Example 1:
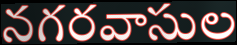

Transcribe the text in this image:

నగరవాసుల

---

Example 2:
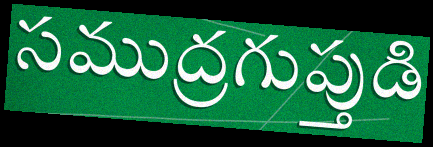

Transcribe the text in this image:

సముద్రగుప్తుడి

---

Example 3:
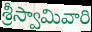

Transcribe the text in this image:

శ్రీస్వామివారి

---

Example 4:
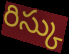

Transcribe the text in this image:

రిస్కు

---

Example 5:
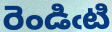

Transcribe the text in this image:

రెండిఁటి